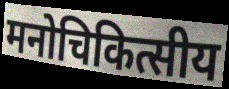
मनोचिकित्सीय